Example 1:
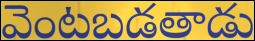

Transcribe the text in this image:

వెంటబడతాడు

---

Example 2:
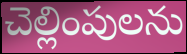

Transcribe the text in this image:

చెల్లింపులను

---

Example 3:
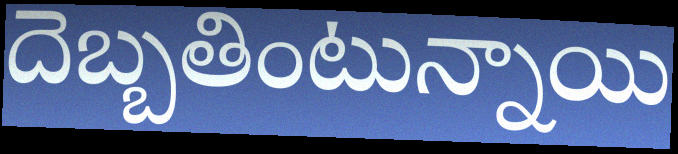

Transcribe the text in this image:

దెబ్బతింటున్నాయి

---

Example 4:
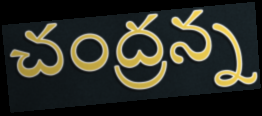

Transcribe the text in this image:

చంద్రన్న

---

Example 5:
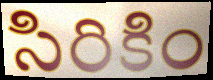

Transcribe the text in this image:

సిరికిం